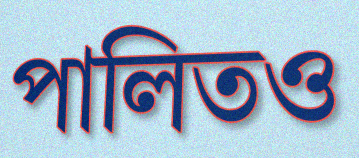
পালিতও